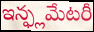
ఇన్ఫ్లమేటరీ